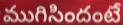
ముగిసిందంటే